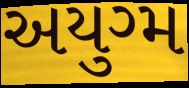
અયુગ્મ